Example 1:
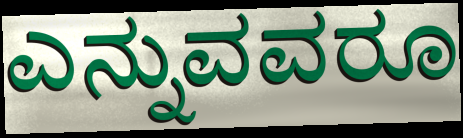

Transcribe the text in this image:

ಎನ್ನುವವರೂ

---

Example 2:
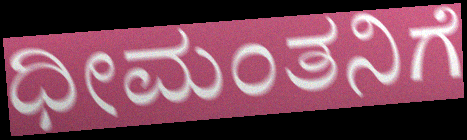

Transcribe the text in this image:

ಧೀಮಂತನಿಗೆ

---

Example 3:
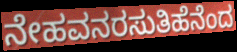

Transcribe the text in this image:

ನೇಹವನರಸುತಿಹೆನೆಂದ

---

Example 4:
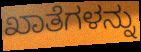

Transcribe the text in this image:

ಖಾತೆಗಳನ್ನು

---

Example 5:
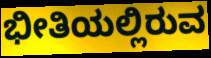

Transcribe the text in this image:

ಭೀತಿಯಲ್ಲಿರುವ